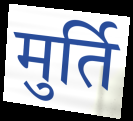
मुर्ति